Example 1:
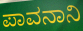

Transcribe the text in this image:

ಪಾವನಾನಿ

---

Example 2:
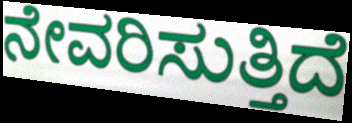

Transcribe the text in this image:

ನೇವರಿಸುತ್ತಿದೆ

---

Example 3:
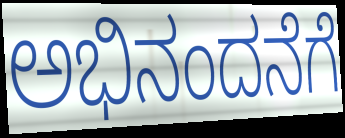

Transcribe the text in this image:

ಅಭಿನಂದನೆಗೆ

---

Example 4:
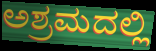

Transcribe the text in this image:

ಅಶ್ರಮದಲ್ಲಿ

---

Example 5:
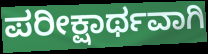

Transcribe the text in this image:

ಪರೀಕ್ಷಾರ್ಥವಾಗಿ